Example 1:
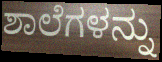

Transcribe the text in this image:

ಶಾಲೆಗಳನ್ನು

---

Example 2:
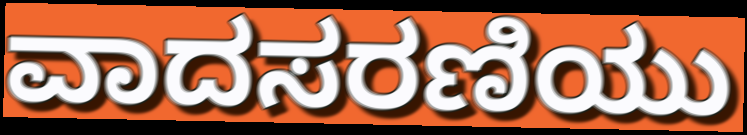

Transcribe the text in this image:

ವಾದಸರಣಿಯು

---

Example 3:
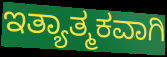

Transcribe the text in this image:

ಇತ್ಯಾತ್ಮಕವಾಗಿ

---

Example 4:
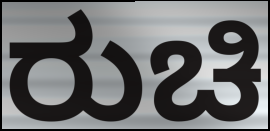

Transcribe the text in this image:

ರುಚಿ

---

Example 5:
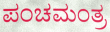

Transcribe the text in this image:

ಪಂಚಮಂತ್ರ